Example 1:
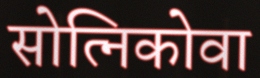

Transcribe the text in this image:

सोत्निकोवा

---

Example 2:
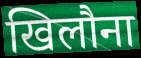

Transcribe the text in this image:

खिलौना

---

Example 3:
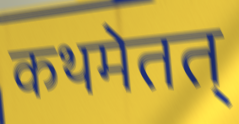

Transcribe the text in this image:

कथमेतत्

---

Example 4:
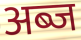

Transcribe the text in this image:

अब्ज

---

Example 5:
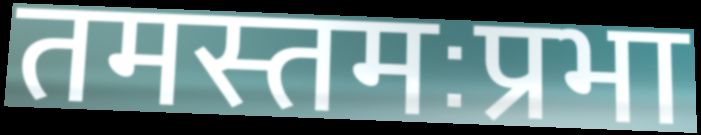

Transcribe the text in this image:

तमस्तमःप्रभा